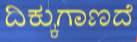
ದಿಕ್ಕುಗಾಣದೆ